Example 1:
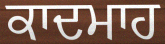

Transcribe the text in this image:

ਕਾਦਮਾਹ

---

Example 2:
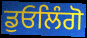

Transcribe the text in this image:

ਡੁਓਲਿੰਗੋ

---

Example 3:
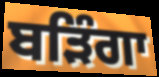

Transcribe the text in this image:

ਬੜਿੰਗਾ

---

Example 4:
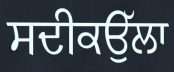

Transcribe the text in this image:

ਸਦੀਕਉੱਲਾ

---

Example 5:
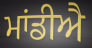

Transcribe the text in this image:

ਮਾਂਡੀਐ